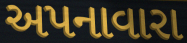
અપનાવારા